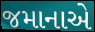
જમાનાએ